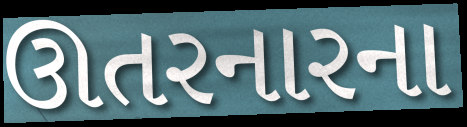
ઊતરનારના